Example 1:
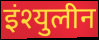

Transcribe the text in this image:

इंश्युलीन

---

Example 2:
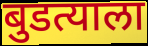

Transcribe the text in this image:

बुडत्याला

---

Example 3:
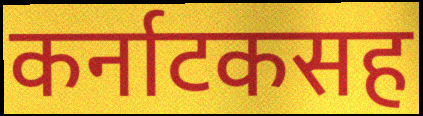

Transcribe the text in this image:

कर्नाटकसह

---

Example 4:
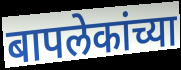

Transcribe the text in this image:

बापलेकांच्या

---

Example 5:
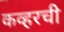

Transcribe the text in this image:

कव्हरची